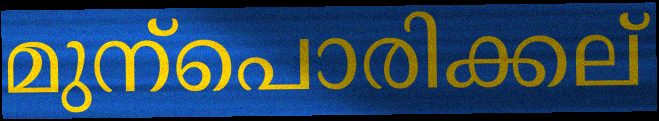
മുന്പൊരിക്കല്